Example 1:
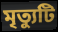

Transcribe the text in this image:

মৃত্যুটি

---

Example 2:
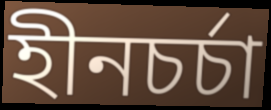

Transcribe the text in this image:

হীনচর্চা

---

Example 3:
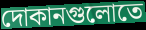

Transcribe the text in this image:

দোকানগুলোতে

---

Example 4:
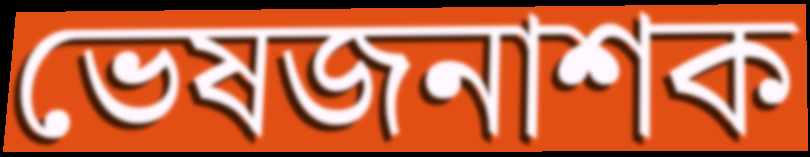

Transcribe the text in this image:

ভেষজনাশক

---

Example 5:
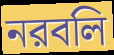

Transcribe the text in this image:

নরবলি